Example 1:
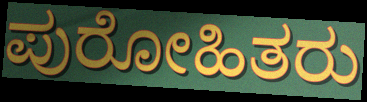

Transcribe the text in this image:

ಪುರೋಹಿತರು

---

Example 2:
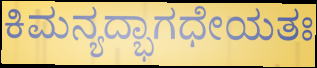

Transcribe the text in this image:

ಕಿಮನ್ಯದ್ಭಾಗಧೇಯತಃ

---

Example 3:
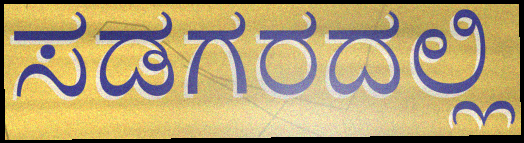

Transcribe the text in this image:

ಸಡಗರದಲ್ಲಿ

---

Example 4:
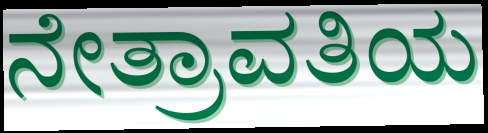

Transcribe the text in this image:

ನೇತ್ರಾವತಿಯ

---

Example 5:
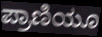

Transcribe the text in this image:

ಪ್ರಾಣಿಯೂ